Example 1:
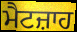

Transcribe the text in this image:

ਮੈਟਜ਼ਾਹ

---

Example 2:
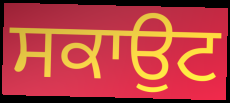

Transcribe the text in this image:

ਸਕਾਉਟ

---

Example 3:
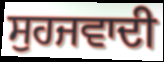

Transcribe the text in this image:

ਸੁਹਜਵਾਦੀ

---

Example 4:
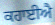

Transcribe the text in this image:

ਕਹਾਈਐ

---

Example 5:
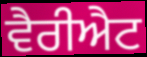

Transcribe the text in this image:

ਵੈਰੀਐਟ